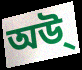
অউ্